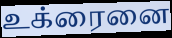
உக்ரைனை